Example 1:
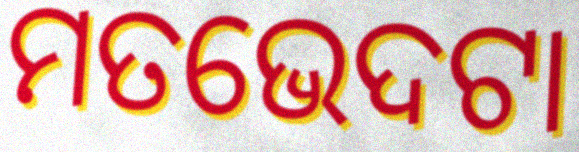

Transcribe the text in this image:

ମତଭେଦଟା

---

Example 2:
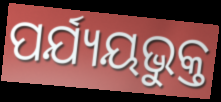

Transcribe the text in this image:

ପର୍ଯ୍ୟୟଭୁକ୍ତ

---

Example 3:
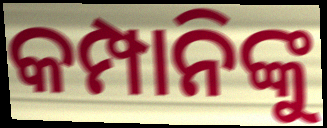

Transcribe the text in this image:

କମ୍ପାନିଙ୍କୁ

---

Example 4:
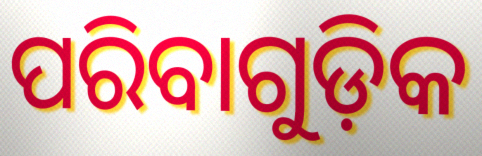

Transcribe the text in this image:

ପରିବାଗୁଡ଼ିକ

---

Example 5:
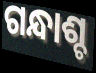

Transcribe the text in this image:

ଗନ୍ଧାଶ୍ଚ